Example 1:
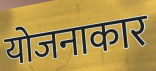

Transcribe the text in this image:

योजनाकार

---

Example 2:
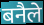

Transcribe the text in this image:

बनैले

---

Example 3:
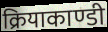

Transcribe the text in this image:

क्रियाकाण्डी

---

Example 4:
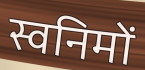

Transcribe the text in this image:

स्वनिमों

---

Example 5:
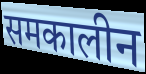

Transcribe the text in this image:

समकालीन